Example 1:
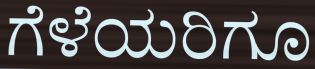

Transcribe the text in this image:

ಗೆಳೆಯರಿಗೂ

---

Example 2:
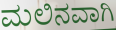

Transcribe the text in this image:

ಮಲಿನವಾಗಿ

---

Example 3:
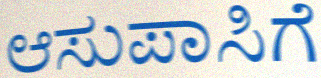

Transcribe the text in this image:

ಆಸುಪಾಸಿಗೆ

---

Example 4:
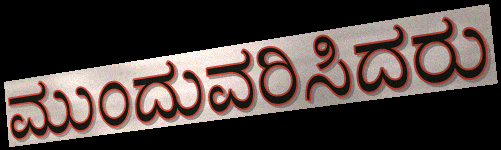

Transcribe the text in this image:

ಮುಂದುವರಿಸಿದರು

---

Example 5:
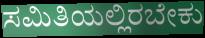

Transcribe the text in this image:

ಸಮಿತಿಯಲ್ಲಿರಬೇಕು